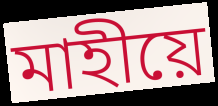
মাহীয়ে